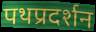
पथप्रदर्शन